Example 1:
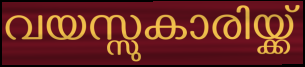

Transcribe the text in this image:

വയസ്സുകാരിയ്ക്ക്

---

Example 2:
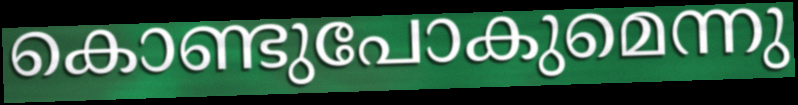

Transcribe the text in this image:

കൊണ്ടുപോകുമെന്നു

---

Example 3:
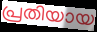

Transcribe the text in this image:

പ്രതിയായ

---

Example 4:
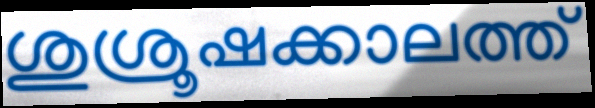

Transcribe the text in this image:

ശുശ്രൂഷക്കാലത്ത്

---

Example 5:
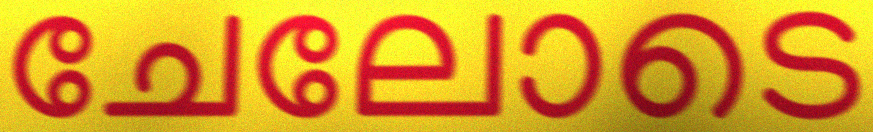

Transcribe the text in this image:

ചേലോടെ